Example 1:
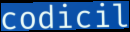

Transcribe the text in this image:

codicil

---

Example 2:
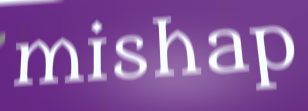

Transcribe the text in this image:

mishap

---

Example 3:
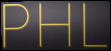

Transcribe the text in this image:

PHL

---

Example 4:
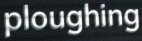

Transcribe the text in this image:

ploughing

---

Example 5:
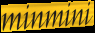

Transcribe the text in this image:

minmini